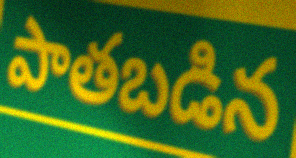
పాతబడిన